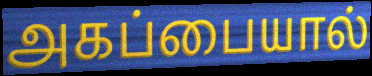
அகப்பையால்